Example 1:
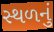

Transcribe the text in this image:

સ્થળનું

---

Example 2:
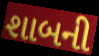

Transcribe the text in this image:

શાબની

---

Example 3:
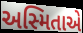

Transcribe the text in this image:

અસ્મિતાએ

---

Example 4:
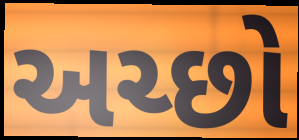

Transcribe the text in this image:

અચ્છો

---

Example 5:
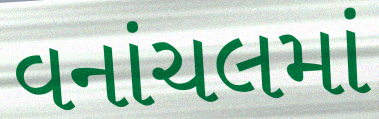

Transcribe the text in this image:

વનાંચલમાં